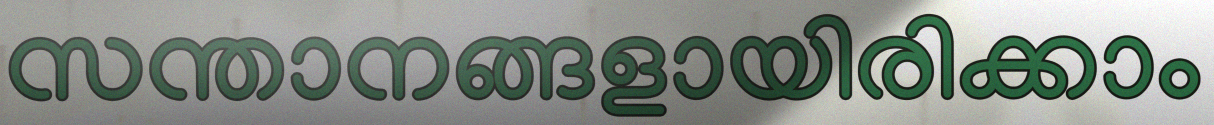
സന്താനങ്ങളായിരിക്കാം